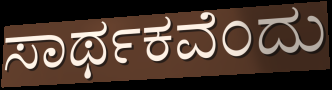
ಸಾರ್ಥಕವೆಂದು